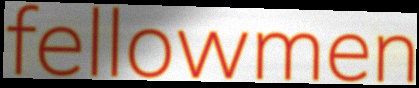
fellowmen